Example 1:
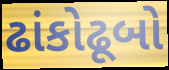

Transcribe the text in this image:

ઢાંકોઢૂબો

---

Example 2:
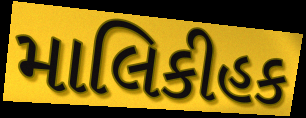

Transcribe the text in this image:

માલિકીહક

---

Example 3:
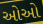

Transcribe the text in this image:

ઓઓ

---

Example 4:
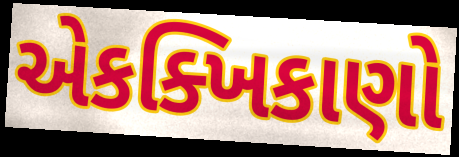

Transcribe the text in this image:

એકક્ખિકાણો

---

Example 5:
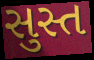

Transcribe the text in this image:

સુસ્ત